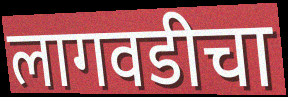
लागवडीचा